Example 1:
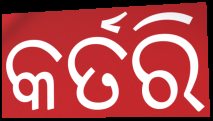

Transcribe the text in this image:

କର୍ତରି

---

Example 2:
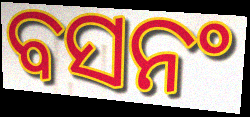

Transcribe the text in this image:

ବସନଂ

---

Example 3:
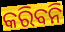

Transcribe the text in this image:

କରିବନି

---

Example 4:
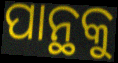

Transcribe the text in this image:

ପାନ୍ଥକୁ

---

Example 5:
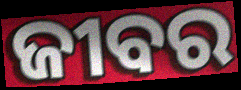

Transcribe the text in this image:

ଜୀବର